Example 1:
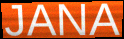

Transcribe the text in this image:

JANA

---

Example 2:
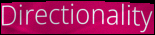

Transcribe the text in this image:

Directionality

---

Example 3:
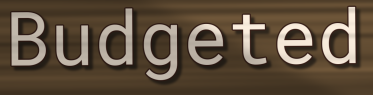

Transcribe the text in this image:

Budgeted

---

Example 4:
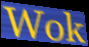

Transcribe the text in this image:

Wok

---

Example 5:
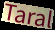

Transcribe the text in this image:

Taral